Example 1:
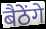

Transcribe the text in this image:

बैठेंगे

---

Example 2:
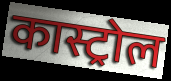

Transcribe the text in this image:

कास्ट्रोल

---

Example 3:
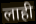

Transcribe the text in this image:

लाही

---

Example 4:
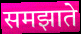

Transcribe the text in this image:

समझाते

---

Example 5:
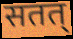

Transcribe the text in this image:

सतत्